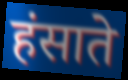
हंसाते